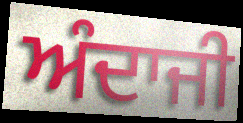
ਅੰਦਾਜੀ